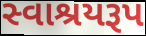
સ્વાશ્રયરૂપ